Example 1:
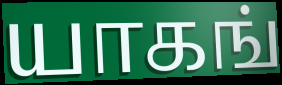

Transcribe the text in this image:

யாகங்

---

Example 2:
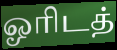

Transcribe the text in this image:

ஓரிடத்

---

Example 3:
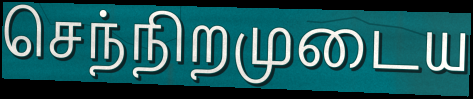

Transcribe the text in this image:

செந்நிறமுடைய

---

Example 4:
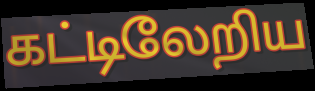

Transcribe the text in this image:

கட்டிலேறிய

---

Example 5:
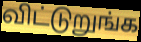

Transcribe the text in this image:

விட்டுறுங்க